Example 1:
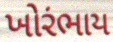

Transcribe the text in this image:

ખોરંભાય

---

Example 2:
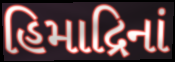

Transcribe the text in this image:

હિમાદ્રિનાં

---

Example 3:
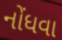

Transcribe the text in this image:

નોંધવા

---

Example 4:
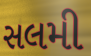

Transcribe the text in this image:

સલમી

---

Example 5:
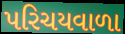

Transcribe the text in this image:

પરિચયવાળા